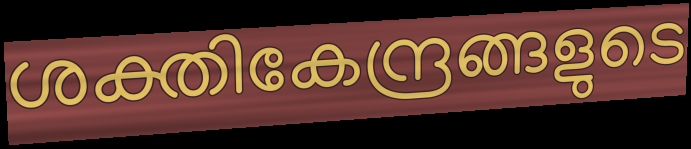
ശക്തികേന്ദ്രങ്ങളുടെ